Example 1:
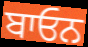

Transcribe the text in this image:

ਬਾਓਨ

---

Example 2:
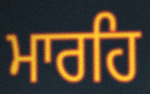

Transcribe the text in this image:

ਮਾਰਹਿ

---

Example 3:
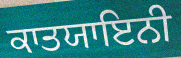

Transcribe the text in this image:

ਕਾਤਯਾਇਨੀ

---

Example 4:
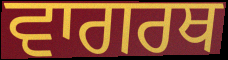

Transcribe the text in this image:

ਵਾਗਰਥ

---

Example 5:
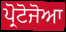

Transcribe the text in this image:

ਪ੍ਰੋਟੋਜੋਆ